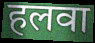
हलवा